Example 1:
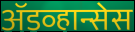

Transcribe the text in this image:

ॲडव्हान्सेस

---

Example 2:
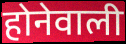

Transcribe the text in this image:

होनेवाली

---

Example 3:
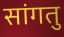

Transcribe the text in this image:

सांगतु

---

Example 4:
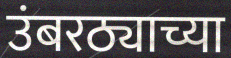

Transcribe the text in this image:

उंबरठ्याच्या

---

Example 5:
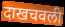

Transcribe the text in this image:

दाखचवली